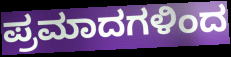
ಪ್ರಮಾದಗಳಿಂದ